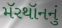
મૅરથૉનનું